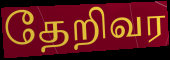
தேறிவர